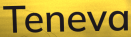
Teneva